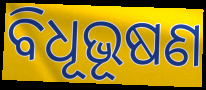
ବିଧୂଭୂଷଣ